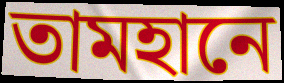
তামহানে